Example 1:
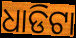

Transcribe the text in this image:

ଧାଡିଟା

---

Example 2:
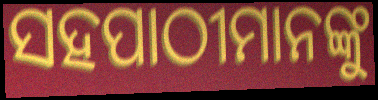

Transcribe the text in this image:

ସହପାଠୀମାନଙ୍କୁ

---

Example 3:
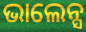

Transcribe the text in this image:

ଭାଲେନ୍ସ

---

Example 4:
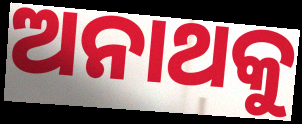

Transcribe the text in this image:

ଅନାଥକୁ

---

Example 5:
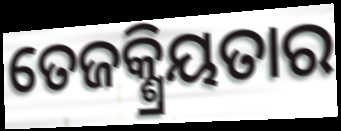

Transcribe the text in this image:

ତେଜକ୍ଶ୍ରିୟତାର